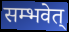
सम्भवेत्